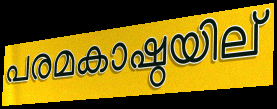
പരമകാഷ്ഠയില്